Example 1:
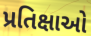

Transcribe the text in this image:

પ્રતિક્ષાઓ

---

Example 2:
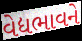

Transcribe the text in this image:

વેદ્યભાવને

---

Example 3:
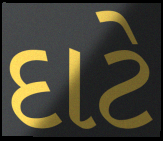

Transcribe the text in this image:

દાટે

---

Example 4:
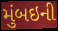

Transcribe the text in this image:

મુંબઇની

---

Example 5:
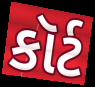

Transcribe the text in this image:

કૉર્ટ